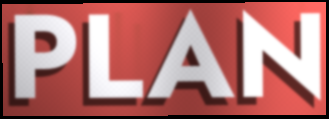
PLAN